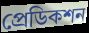
প্রেডিকশন